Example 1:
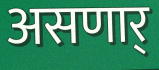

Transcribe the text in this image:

असणार्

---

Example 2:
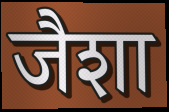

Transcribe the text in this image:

जैशा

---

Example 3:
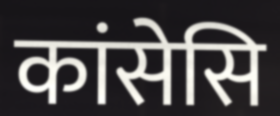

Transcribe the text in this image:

कांसेसि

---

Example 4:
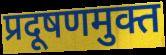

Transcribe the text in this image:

प्रदूषणमुक्त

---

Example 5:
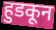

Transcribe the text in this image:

हुडकून